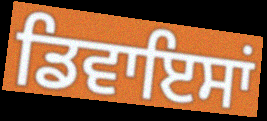
ਡਿਵਾਇਸਾਂ